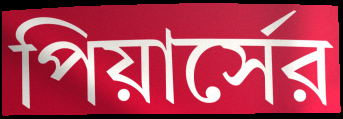
পিয়ার্সের